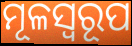
ମୂଳସ୍ୱରୂପ